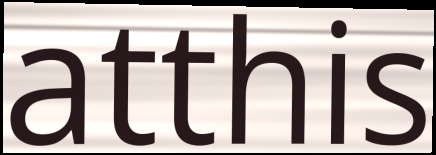
atthis